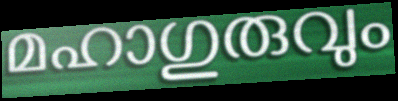
മഹാഗുരുവും